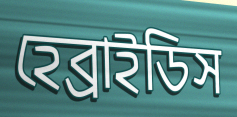
হেব্রাইডিস